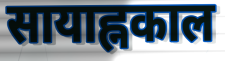
सायाह्नकाल